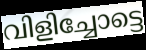
വിളിച്ചോട്ടെ